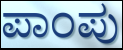
ಪಾಂಪು